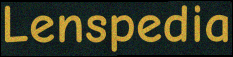
Lenspedia